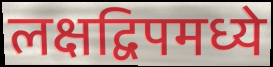
लक्षद्विपमध्ये